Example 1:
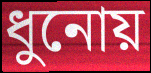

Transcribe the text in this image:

ধুনোয়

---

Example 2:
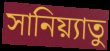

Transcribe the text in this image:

সানিয়্যাতু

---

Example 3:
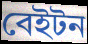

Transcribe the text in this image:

বেইটন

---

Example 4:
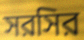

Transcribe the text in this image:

সরসির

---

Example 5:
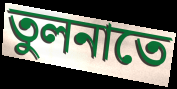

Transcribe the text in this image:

তুলনাতে